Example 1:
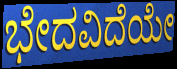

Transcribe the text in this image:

ಭೇದವಿದೆಯೇ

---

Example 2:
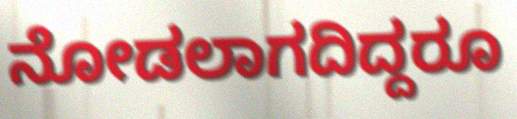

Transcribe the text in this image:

ನೋಡಲಾಗದಿದ್ದರೂ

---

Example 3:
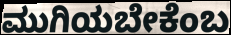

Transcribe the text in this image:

ಮುಗಿಯಬೇಕೆಂಬ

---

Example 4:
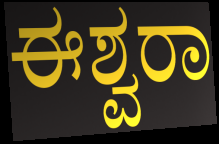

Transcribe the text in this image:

ಈಶ್ವರಾ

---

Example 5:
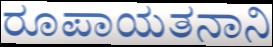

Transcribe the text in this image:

ರೂಪಾಯತನಾನಿ